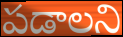
పడాలని